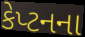
કેપ્ટનના